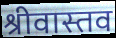
श्रीवास्‍तव